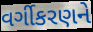
વર્ગીકરણને